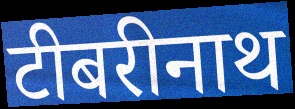
टीबरीनाथ